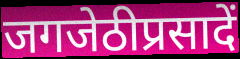
जगजेठीप्रसादें